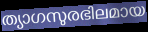
ത്യാഗസുരഭിലമായ